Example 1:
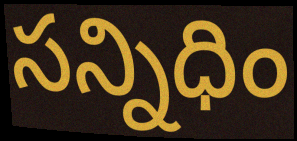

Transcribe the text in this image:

సన్నిధిం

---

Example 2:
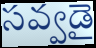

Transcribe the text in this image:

సవ్వడై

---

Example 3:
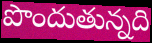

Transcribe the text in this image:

పొందుతున్నది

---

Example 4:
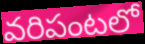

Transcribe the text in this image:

వరిపంటలో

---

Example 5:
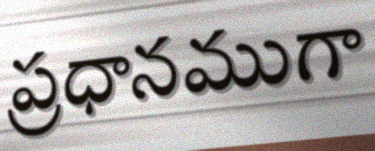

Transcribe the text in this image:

ప్రధానముగా